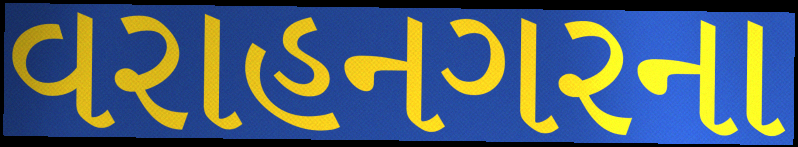
વરાહનગરના